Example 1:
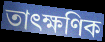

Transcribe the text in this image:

তাৎক্ষণিক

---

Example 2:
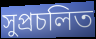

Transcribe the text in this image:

সুপ্রচলিত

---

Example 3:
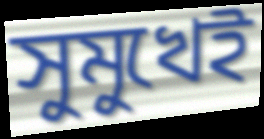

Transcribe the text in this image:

সুমুখেই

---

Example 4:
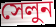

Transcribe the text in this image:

সেলুন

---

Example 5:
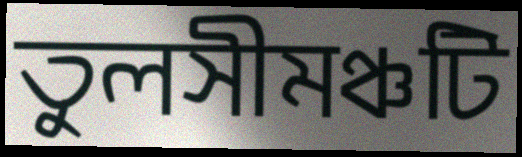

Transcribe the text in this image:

তুলসীমঞ্চটি